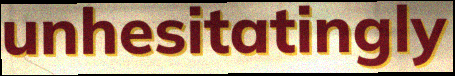
unhesitatingly